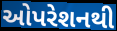
ઓપરેશનથી